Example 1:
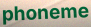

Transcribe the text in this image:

phoneme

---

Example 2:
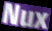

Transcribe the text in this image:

Nux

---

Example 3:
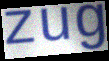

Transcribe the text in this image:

zug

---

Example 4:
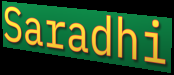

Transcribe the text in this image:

Saradhi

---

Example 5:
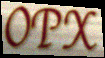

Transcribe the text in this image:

OPX